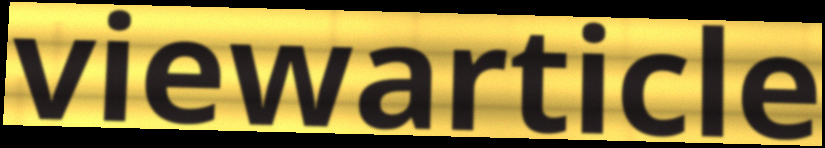
viewarticle